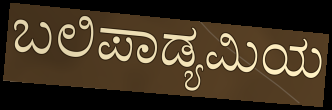
ಬಲಿಪಾಡ್ಯಮಿಯ